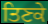
ਤਿਣਕੇ